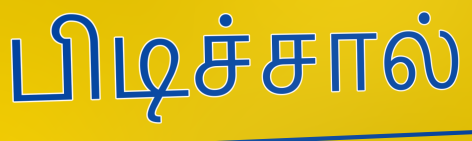
பிடிச்சால்